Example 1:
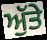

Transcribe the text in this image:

ਅੁੱਤੇ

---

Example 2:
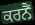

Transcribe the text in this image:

ਕਰਨੈਂ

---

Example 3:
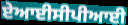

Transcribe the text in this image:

ਏਆਈਸੀਪੀਆਈ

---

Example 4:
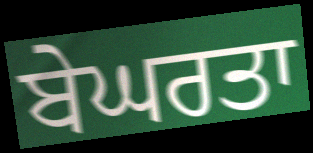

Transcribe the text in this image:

ਬੇਘਰਤਾ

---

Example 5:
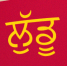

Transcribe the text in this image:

ਲੁੱਡੂ